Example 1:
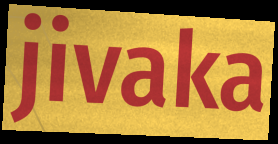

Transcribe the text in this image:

jivaka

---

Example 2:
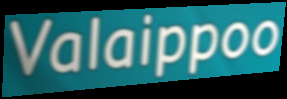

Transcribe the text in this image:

Valaippoo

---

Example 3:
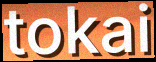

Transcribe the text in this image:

tokai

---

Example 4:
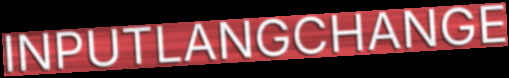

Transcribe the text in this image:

INPUTLANGCHANGE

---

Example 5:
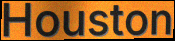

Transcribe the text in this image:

Houston